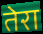
तेरा